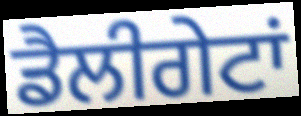
ਡੈਲੀਗੇਟਾਂ